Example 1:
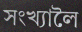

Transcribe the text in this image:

সংখ্যালৈ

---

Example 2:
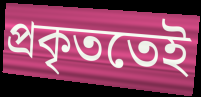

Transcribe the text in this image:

প্ৰকৃততেই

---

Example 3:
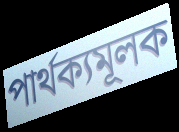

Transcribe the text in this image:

পাৰ্থক্যমূলক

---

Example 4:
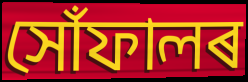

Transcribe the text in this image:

সোঁফালৰ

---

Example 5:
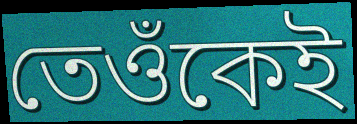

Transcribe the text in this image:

তেওঁকেই